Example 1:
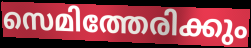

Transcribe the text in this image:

സെമിത്തേരിക്കും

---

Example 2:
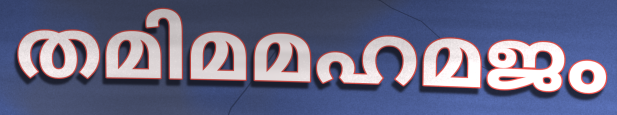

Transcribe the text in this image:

തമിമമഹമജം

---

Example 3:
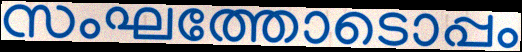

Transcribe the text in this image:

സംഘത്തോടൊപ്പം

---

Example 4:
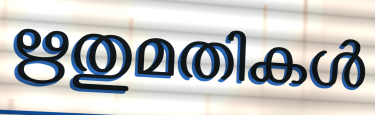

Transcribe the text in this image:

ഋതുമതികൾ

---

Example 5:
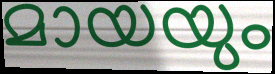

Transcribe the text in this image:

മായയും